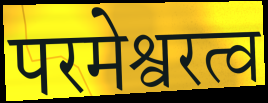
परमेश्वरत्व